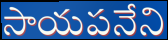
సాయపనేని